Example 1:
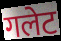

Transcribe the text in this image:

गलेट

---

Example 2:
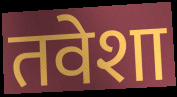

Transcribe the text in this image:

तवेशा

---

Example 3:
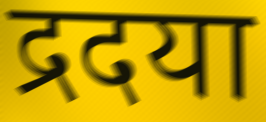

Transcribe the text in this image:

द्रदया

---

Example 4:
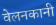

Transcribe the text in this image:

वेलनकानी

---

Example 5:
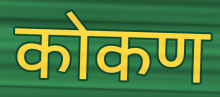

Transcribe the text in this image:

कोकण